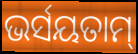
ଭର୍ସୟତାମ୍